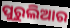
ପୁରୁଲିଆର